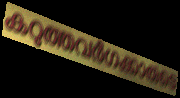
കറുത്തവർഗക്കാരുടെ